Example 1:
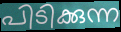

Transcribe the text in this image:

പിടിക്കുന്ന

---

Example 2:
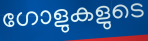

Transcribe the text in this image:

ഗോളുകളുടെ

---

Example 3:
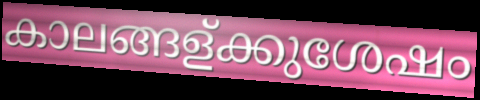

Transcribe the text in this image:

കാലങ്ങള്ക്കുശേഷം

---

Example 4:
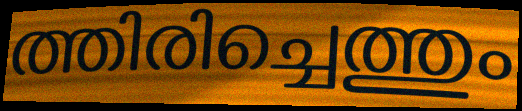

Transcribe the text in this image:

ത്തിരിച്ചെത്തും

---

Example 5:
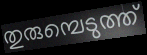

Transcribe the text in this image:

തുരുമ്പെടുത്ത്